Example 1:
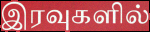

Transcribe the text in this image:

இரவுகளில்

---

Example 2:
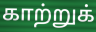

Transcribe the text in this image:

காற்றுக்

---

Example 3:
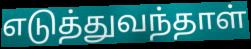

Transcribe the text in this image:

எடுத்துவந்தாள்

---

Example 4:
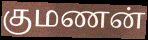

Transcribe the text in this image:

குமணன்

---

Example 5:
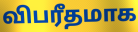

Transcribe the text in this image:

விபரீதமாக